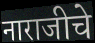
नाराजीचे